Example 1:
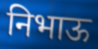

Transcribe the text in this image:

निभाऊ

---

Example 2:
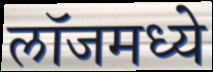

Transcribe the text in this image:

लॉजमध्ये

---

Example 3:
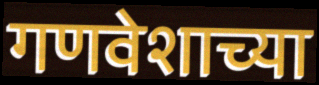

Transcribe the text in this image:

गणवेशाच्या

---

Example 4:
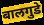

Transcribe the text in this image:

बालगुडे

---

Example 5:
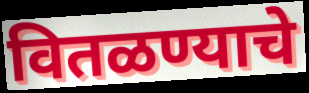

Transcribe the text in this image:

वितळण्याचे